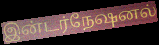
இன்டர்நேஷனல்